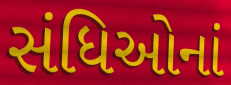
સંધિઓનાં